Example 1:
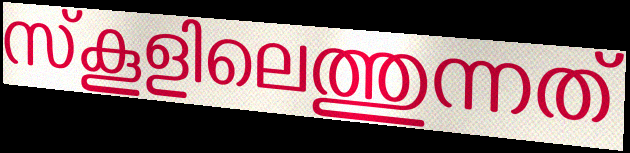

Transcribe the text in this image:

സ്‌കൂളിലെത്തുന്നത്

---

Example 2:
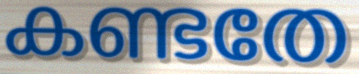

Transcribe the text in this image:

കണ്ടതേ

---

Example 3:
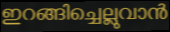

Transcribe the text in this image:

ഇറങ്ങിച്ചെല്ലുവാൻ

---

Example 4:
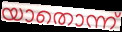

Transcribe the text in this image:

യാതൊന്ന്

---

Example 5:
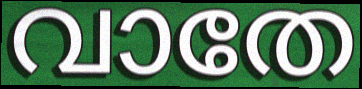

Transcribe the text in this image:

വാതേ